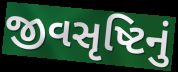
જીવસૃષ્ટિનું